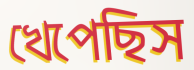
খেপেছিস